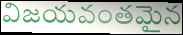
విజయవంతమైన